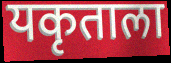
यकृताला